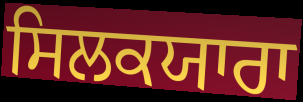
ਸਿਲਕਯਾਰਾ